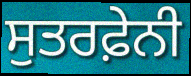
ਸੁਤਰਫ਼ੇਨੀ